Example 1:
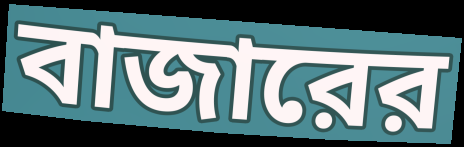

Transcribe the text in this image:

বাজারের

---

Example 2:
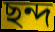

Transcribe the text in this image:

ছন্দ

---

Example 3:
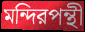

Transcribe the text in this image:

মন্দিরপন্থী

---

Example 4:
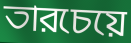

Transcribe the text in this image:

তারচেয়ে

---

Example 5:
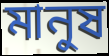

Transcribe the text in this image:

মানুষ